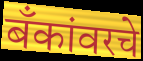
बँकांवरचे